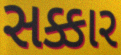
સક્કાર